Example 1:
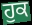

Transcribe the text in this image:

ਹੁਕ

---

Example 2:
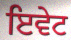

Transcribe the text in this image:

ਇਵੇਟ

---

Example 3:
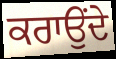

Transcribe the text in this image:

ਕਰਾਉਂਦੇ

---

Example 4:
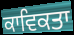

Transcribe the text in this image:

ਕਾਵਿਕਤਾ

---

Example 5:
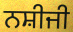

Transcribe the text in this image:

ਨਸ਼ੀਜੀ